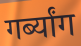
गर्ब्यांग